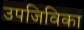
उपजिविका